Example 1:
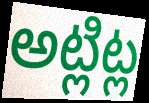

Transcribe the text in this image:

అట్లిట్ల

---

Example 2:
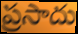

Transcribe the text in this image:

ప్రసాదు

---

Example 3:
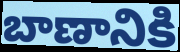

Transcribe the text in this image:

బాణానికి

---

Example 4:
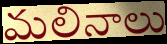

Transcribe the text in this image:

మలినాలు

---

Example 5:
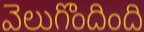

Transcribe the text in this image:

వెలుగొందింది